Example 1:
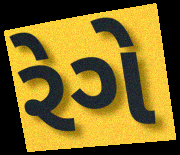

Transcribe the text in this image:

રેગે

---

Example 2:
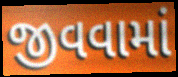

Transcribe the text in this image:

જીવવામાં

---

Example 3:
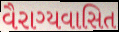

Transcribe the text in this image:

વૈરાગ્યવાસિત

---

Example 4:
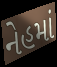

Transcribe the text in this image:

નેહમાં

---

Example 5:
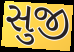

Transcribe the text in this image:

સુજી